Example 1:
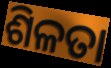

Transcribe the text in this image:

ଶିଳତା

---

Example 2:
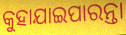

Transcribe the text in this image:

କୁହାଯାଇପାରନ୍ତା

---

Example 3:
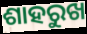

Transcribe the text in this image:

ଶାହରୁଖ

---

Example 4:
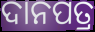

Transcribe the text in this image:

ଦାନପତ୍ର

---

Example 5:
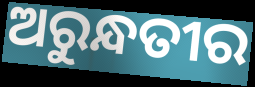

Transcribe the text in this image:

ଅରୁନ୍ଧତୀର